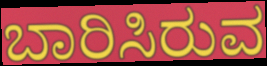
ಬಾರಿಸಿರುವ